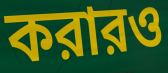
করারও